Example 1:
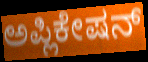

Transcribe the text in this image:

ಅಪ್ಲಿಕೇಷನ್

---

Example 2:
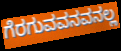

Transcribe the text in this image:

ಗೆರಗುವವನವನಲ್ಲ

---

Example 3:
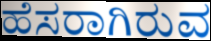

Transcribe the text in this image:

ಹೆಸರಾಗಿರುವ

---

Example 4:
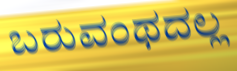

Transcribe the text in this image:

ಬರುವಂಥದಲ್ಲ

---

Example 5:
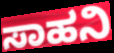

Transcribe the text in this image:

ಸಾಹನಿ